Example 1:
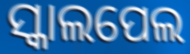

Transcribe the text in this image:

ସ୍କାଲପେଲ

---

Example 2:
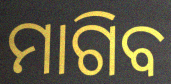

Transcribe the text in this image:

ମାଗିବ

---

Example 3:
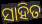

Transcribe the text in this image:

ସାହିତ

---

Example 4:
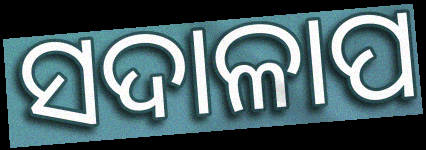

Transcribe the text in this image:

ସଦାଳାପ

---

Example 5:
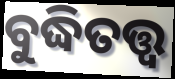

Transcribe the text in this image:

ବୁଦ୍ଧିତତ୍ତ୍ବ